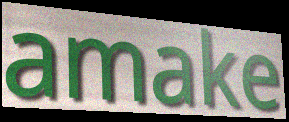
amake